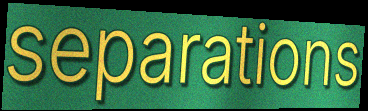
separations